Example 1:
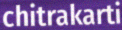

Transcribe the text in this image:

chitrakarti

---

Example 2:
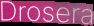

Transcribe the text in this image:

Drosera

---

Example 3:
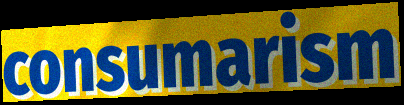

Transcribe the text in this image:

consumarism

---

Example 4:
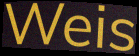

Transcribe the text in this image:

Weis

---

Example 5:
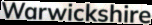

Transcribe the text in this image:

Warwickshire